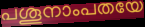
പശൂനാംപതയേ